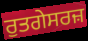
ਰੁਤਗੇਸਰਜ਼